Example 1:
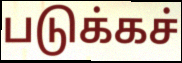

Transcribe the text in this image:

படுக்கச்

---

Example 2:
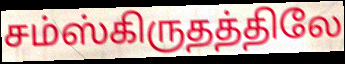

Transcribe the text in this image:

சம்ஸ்கிருதத்திலே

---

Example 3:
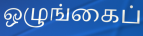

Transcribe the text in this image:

ஒழுங்கைப்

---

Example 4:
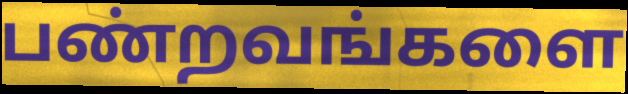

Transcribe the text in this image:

பண்றவங்களை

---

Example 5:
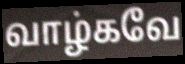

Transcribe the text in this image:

வாழ்கவே